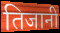
तिजानी